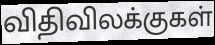
விதிவிலக்குகள்